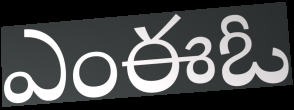
ఎంఈఓ